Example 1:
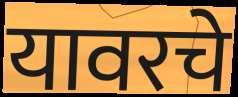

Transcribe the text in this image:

यावरचे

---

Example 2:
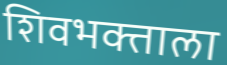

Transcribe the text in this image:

शिवभक्ताला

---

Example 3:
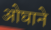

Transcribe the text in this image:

ओघाने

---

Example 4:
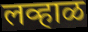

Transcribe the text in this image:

लव्हाळ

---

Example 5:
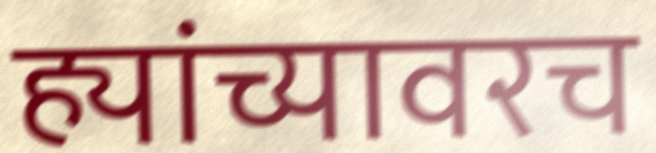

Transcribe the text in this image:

ह्यांच्यावरच